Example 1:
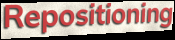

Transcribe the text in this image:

Repositioning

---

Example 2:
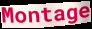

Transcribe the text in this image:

Montage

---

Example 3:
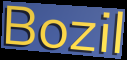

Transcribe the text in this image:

Bozil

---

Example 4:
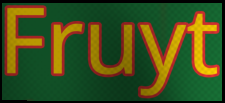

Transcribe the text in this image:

Fruyt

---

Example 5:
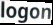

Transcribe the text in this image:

logon